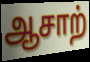
ஆசாற்